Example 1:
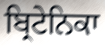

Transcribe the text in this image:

ਬ੍ਰਿਟੇਨਿਕਾ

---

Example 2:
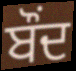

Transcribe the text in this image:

ਬੌਂਦ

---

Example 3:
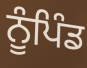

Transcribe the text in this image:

ਨੂੰਪਿੰਡ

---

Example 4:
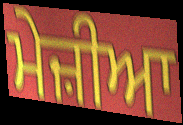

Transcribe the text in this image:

ਮੇਜ਼ੀਆ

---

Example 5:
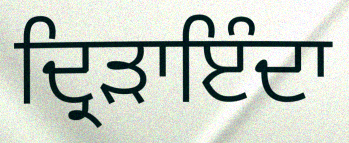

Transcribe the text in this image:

ਦ੍ਰਿੜਾਇੰਦਾ